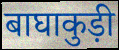
बाघाकुड़ी